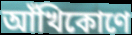
আঁখিকোণে